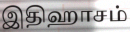
இதிஹாசம்